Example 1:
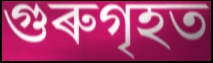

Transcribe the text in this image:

গুৰুগৃহত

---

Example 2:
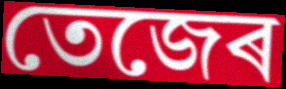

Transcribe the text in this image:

তেজেৰ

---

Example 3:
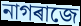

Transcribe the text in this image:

নাগৰাজে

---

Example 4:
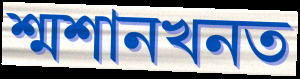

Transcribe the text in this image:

শ্মশানখনত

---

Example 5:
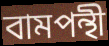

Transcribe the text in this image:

বামপন্থী